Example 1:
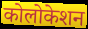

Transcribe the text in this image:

कोलोकेशन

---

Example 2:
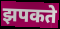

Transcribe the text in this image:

झपकते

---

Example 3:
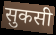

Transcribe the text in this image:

सुकसी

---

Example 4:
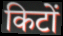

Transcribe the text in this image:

किटों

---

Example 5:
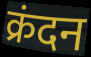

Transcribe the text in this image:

क्रंदन